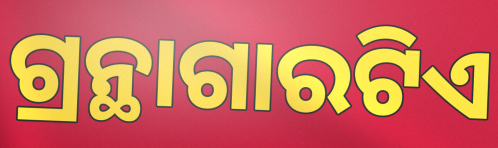
ଗ୍ରନ୍ଥାଗାରଟିଏ